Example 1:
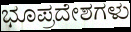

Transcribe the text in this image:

ಭೂಪ್ರದೇಶಗಳು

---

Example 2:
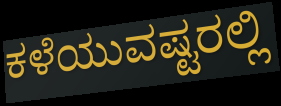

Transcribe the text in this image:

ಕಳೆಯುವಷ್ಟರಲ್ಲಿ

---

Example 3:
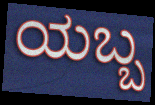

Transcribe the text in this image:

ಯಬ್ಬ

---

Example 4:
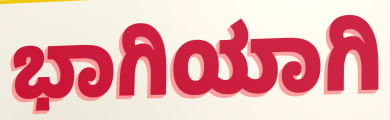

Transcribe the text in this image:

ಭಾಗಿಯಾಗಿ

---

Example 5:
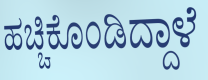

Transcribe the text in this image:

ಹಚ್ಚಿಕೊಂಡಿದ್ದಾಳೆ